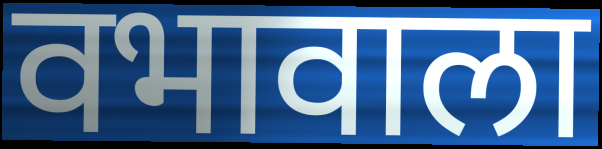
वभावाला